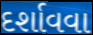
દર્શાવવા